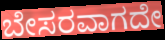
ಬೇಸರವಾಗದೇ